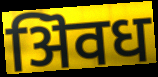
ऄिवध